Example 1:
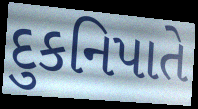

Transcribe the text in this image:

દુકનિપાતે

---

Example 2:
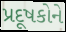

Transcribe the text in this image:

પ્રદૂષકોને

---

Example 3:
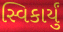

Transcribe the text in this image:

સ્વિકાર્યું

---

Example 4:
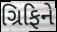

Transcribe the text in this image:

ગ્રિફિને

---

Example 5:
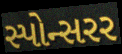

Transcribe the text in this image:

સ્પોન્સરર